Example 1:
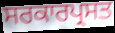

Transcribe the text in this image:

ਸਰਕਾਰਪ੍ਰਸਤ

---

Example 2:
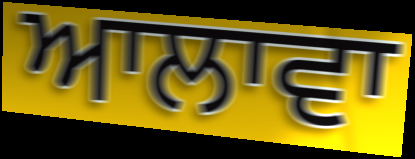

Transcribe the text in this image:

ਆਲਾਵਾ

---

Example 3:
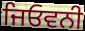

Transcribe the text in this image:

ਜਿਓਵਨੀ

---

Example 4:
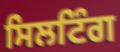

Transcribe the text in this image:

ਸਿਲਟਿੰਗ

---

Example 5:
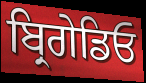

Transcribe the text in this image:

ਬ੍ਰਿਗੇਡਿਓ